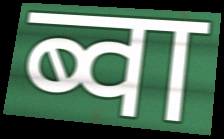
ब्वा